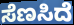
ಸೆಣಸಿದೆ